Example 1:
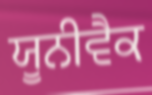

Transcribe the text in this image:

ਯੂਨੀਵੈਕ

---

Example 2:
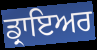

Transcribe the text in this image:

ਡ੍ਰਾਇਅਰ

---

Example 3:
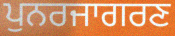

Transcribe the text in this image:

ਪੁਨਰਜਾਗਰਣ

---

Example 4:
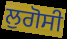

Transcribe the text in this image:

ਲੁਗੋਸੀ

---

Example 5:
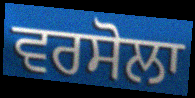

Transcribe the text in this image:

ਵਰਸੋਲਾ